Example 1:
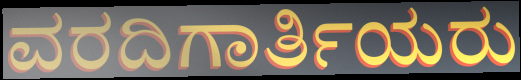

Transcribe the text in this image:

ವರದಿಗಾರ್ತಿಯರು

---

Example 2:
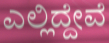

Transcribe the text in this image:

ಎಲ್ಲಿದ್ದೇವೆ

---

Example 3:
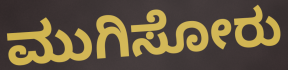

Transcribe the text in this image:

ಮುಗಿಸೋರು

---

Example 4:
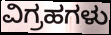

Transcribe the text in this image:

ವಿಗ್ರಹಗಳು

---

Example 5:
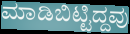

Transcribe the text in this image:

ಮಾಡಿಬಿಟ್ಟಿದ್ದವು